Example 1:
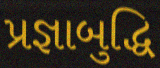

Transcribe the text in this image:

પ્રજ્ઞાબુદ્ધિ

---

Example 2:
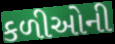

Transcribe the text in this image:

કળીઓની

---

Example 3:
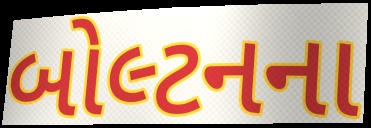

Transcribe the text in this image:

બોલ્ટનના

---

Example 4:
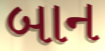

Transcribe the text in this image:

બાન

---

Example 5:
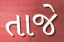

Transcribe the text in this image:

તાજે